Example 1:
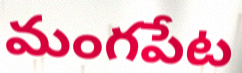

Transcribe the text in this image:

మంగపేట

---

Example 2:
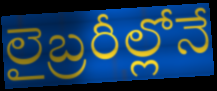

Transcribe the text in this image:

లైబ్రరీల్లోనే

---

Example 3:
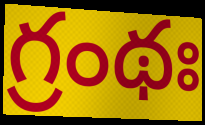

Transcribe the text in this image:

గ్రంథః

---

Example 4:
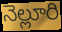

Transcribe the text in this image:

నెల్లూరి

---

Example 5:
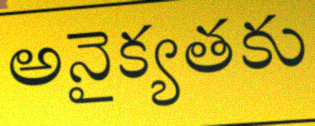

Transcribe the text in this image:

అనైక్యతకు